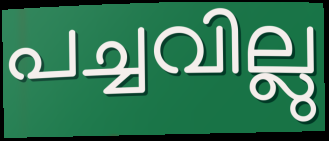
പച്ചവില്ലു